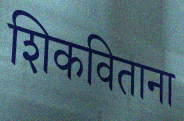
शिकविताना